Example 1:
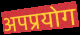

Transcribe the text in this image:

अपप्रयोग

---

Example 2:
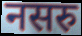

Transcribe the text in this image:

नसरु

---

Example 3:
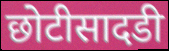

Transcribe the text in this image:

छोटीसादडी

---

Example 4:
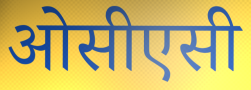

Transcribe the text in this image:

ओसीएसी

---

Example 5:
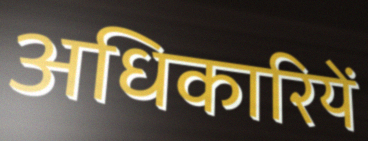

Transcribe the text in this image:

अधिकारियें